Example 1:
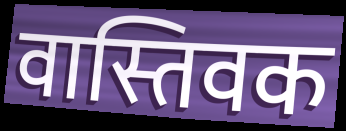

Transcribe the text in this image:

वास्तिवक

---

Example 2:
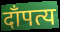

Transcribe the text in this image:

दाँपत्य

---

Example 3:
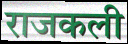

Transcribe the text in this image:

राजकली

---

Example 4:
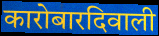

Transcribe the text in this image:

कारोबारदिवाली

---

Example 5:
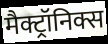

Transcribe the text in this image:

मैक्ट्रॉनिक्स